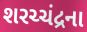
શરચ્ચંદ્રના